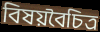
বিষয়বৈচিত্র